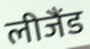
लीजैंड